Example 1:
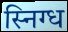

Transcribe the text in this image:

स्‍निग्ध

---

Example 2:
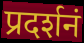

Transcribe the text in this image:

प्रदर्शनं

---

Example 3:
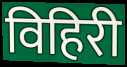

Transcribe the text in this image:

विहिरी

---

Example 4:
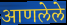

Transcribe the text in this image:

आणलेले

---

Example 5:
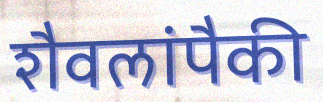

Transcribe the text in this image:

शैवलांपैकी